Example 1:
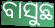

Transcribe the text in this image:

ବାସୁଛ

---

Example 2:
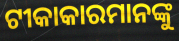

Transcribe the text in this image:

ଟୀକାକାରମାନଙ୍କୁ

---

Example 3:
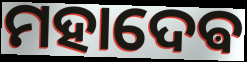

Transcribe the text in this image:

ମହାଦେଵ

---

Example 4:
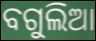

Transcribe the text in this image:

ବଗୁଲିଆ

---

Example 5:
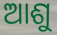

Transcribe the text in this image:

ଆଶୁ